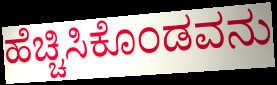
ಹೆಚ್ಚಿಸಿಕೊಂಡವನು